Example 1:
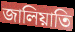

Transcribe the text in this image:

জালিয়াতি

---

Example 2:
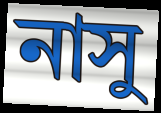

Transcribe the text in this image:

নাসু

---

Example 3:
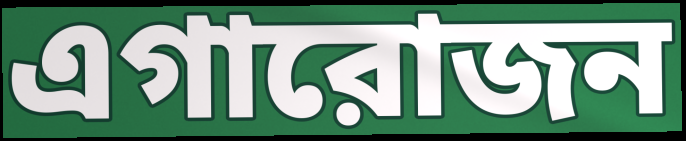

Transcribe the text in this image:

এগারোজন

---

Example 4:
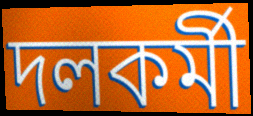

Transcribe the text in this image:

দলকর্মী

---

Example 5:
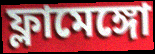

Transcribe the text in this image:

ফ্লামেঙ্গো